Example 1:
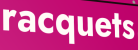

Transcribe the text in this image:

racquets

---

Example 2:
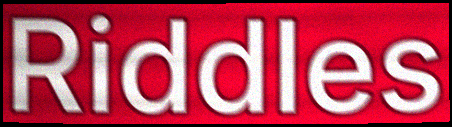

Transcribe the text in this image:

Riddles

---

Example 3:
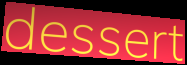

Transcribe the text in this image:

dessert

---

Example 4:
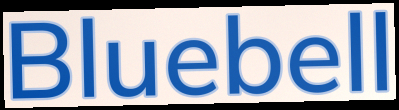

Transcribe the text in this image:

Bluebell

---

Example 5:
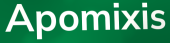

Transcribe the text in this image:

Apomixis